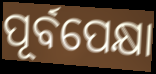
ପୂର୍ବପେକ୍ଷା